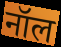
नॉल